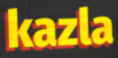
kazla